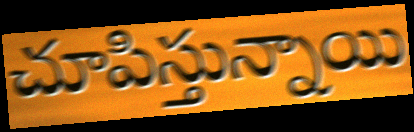
చూపిస్తున్నాయి